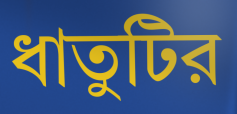
ধাতুটির